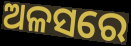
ଅଳସରେ